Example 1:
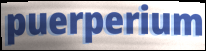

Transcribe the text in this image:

puerperium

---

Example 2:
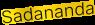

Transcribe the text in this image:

Sadananda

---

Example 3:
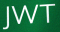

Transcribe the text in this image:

JWT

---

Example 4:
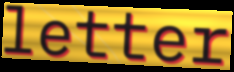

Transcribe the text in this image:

letter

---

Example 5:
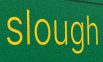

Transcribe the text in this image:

slough